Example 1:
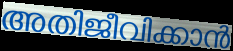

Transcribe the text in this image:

അതിജീവിക്കാൻ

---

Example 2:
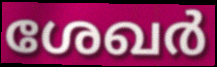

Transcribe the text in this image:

ശേഖർ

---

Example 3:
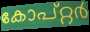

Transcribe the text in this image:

കോപ്റ്റർ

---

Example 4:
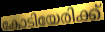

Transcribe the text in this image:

കോടിയേരിക്ക്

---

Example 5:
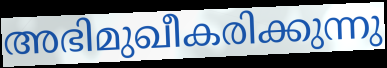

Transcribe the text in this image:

അഭിമുഖീകരിക്കുന്നു